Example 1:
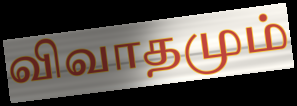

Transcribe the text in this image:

விவாதமும்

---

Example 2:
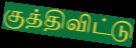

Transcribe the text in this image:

குத்திவிட்டு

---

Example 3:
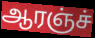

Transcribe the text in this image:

ஆரஞ்ச்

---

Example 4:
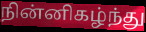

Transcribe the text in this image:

நின்னிகழ்ந்து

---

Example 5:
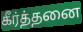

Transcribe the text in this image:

கீர்த்தனை